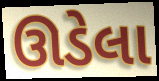
ઊડેલા